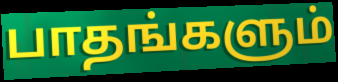
பாதங்களும்